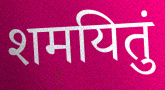
शमयितुं